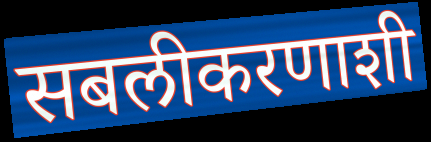
सबलीकरणाशी